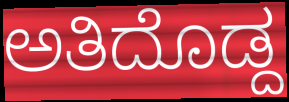
ಅತಿದೊಡ್ದ